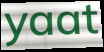
yaat